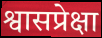
श्वासप्रेक्षा